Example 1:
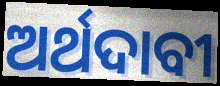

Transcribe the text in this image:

ଅର୍ଥଦାବୀ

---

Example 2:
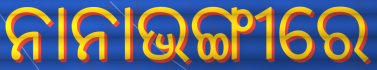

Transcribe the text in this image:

ନାନାଭଙ୍ଗୀରେ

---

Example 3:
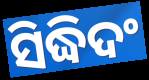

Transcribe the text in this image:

ସିଦ୍ଧିଦଂ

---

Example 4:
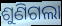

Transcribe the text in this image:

ଶୁଣିଗଲା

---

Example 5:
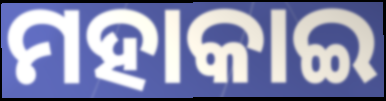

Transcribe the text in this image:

ମହାକାଇ